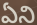
ఏని